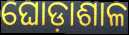
ଘୋଡ଼ାଶାଳ